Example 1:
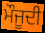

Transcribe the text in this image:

ਮੌਜੂਦੀ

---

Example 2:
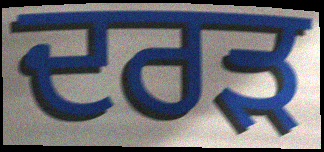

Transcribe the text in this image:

ਦਰੜ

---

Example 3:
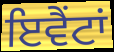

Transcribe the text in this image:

ਇਵੈਂਟਾਂ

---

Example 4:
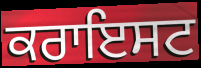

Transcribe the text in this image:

ਕਰਾਇਸਟ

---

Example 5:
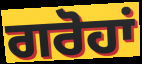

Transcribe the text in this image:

ਗਰੋਹਾਂ